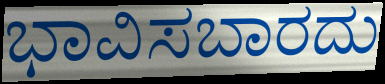
ಭಾವಿಸಬಾರದು